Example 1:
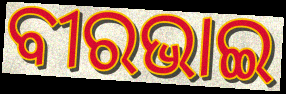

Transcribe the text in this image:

ବୀରଭାଇ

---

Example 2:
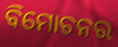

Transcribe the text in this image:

ବିମୋଚନର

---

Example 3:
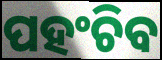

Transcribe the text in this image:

ପହଂଚିବ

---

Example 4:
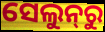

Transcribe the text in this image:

ସେଲୁନ୍‌ରୁ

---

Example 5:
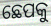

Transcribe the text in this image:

ଛେପକୁ